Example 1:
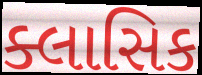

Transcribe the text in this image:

ક્લાસિક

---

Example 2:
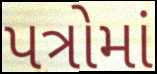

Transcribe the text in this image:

પત્રોમાં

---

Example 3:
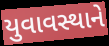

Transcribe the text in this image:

યુવાવસ્થાને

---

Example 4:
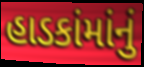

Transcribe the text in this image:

હાડકાંમાંનું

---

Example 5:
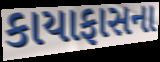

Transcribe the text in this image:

કાયાફાસના